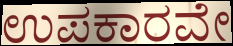
ಉಪಕಾರವೇ